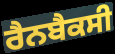
ਰੈਨਬੈਕਸੀ